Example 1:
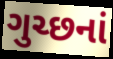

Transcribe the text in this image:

ગુચ્છનાં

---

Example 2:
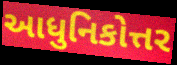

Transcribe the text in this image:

આધુનિકોત્તર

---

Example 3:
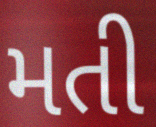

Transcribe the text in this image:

મતી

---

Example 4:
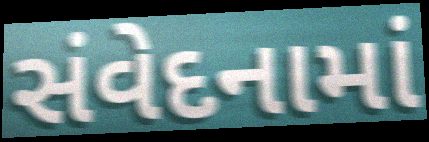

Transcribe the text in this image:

સંવેદનામાં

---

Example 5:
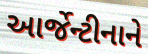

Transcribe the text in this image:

આર્જેન્ટીનાને